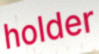
holder